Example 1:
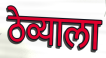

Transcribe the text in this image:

ठेव्याला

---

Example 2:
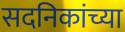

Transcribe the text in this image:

सदनिकांच्या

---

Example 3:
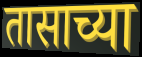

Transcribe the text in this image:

तासाच्या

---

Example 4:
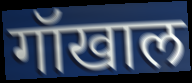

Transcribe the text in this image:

गॉखाल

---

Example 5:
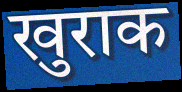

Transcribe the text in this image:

खुराक